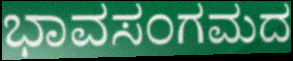
ಭಾವಸಂಗಮದ